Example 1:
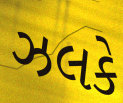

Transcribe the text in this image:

ઝલકે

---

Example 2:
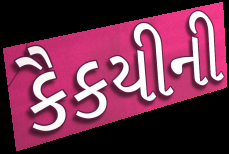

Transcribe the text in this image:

કૈકયીની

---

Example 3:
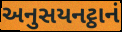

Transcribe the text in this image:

અનુસયનટ્ઠાનં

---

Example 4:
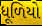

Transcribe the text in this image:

ધૂળિયો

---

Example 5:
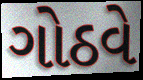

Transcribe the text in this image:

ગોઠવે